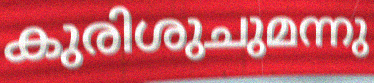
കുരിശുചുമന്നു